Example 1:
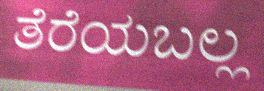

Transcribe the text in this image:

ತೆರೆಯಬಲ್ಲ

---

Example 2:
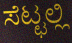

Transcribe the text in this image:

ಸೆಟ್ಟಲ್ಲಿ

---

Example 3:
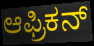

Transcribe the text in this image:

ಆಫ್ರಿಕನ್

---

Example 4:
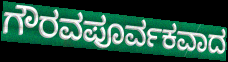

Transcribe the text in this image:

ಗೌರವಪೂರ್ವಕವಾದ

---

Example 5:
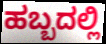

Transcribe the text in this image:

ಹಬ್ಬದಲ್ಲಿ